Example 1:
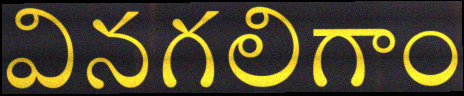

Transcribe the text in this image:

వినగలిగాం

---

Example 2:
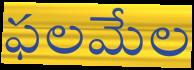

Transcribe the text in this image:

ఫలమేల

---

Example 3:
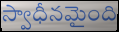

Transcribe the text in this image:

స్వాధీనమైంది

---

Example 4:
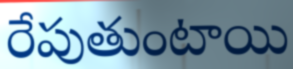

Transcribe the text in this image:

రేపుతుంటాయి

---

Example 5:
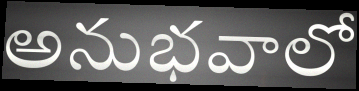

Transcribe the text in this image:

అనుభవాలో